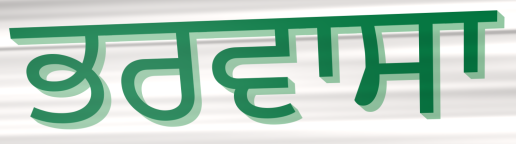
ਭਰਵਾਸਾ